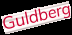
Guldberg